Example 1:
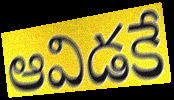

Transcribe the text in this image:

ఆవిడకే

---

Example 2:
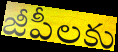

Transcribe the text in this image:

జీపీలకు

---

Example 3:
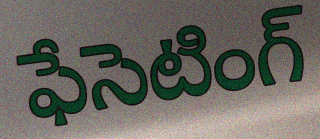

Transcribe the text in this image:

ఫేసెటింగ్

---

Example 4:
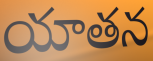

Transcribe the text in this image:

యాతన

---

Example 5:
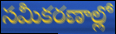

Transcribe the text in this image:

సమీకరణాల్లో